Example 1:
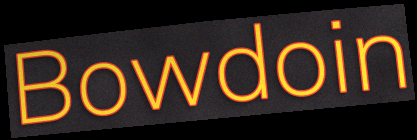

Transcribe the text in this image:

Bowdoin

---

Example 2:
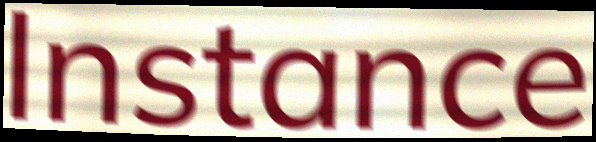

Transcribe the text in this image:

Instance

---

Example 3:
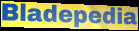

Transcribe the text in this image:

Bladepedia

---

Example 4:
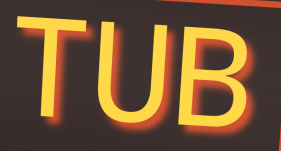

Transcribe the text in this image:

TUB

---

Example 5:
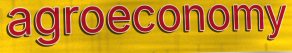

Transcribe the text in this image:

agroeconomy